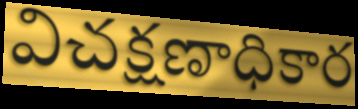
విచక్షణాధికార